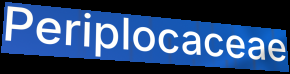
Periplocaceae